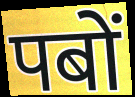
पबों